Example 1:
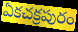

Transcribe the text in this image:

ఏకచక్రపురం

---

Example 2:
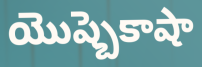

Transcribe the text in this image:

యొష్బెకాషా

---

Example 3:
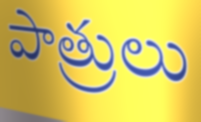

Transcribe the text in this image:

పాత్రులు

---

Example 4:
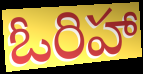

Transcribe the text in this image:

ఓరిహా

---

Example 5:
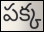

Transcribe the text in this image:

పక్క